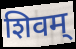
शिवम्